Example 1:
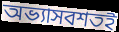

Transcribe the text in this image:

অভ্যাসবশতই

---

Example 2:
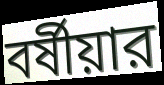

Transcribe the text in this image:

বর্ষীয়ার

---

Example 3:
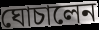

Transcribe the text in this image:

ঘোচালেন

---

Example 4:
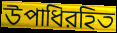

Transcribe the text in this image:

উপাধিরহিত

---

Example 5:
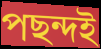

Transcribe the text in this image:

পছন্দই